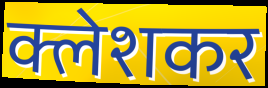
क्लेशकर